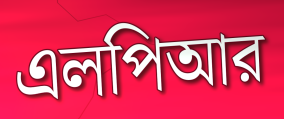
এলপিআর